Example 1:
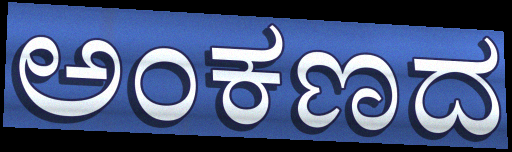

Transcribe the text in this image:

ಅಂಕಣದ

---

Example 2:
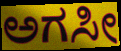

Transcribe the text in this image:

ಅಗಸೀ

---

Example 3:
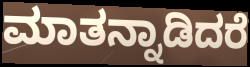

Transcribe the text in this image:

ಮಾತನ್ನಾಡಿದರೆ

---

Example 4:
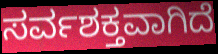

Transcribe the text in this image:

ಸರ್ವಶಕ್ತವಾಗಿದೆ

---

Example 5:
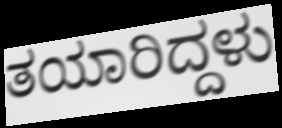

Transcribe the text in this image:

ತಯಾರಿದ್ದಳು